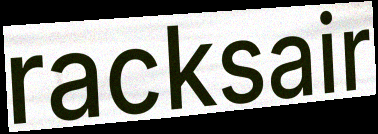
racksair